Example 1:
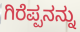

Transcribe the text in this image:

ಗಿರೆಪ್ಪನನ್ನು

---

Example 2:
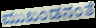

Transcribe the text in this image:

ಮುಖಂಡನಂತೆ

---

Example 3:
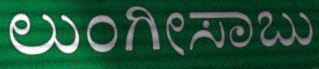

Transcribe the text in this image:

ಲುಂಗೀಸಾಬು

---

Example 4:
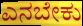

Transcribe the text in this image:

ಎನಬೇಕು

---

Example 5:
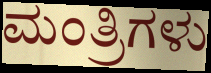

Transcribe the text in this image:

ಮಂತ್ರಿಗಳು